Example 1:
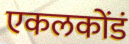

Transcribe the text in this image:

एकलकोंडं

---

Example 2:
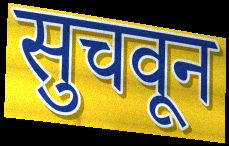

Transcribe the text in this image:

सुचवून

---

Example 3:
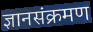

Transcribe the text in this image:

ज्ञानसंक्रमण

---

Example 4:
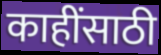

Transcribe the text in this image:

काहींसाठी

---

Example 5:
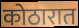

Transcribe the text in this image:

कोठारात